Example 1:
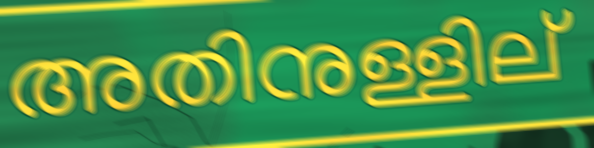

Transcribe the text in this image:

അതിനുള്ളില്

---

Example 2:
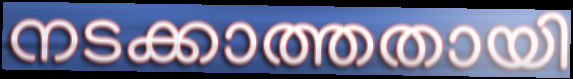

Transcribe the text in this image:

നടക്കാത്തതായി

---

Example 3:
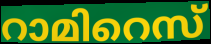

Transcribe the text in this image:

റാമിറെസ്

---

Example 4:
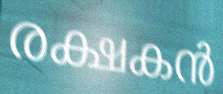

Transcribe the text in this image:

രക്ഷകൻ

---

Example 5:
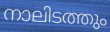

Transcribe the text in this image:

നാലിടത്തും